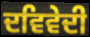
ਦਵਿਵੇਦੀ